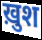
ख़ुश